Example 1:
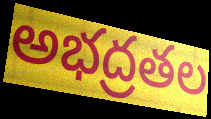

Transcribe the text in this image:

అభద్రతల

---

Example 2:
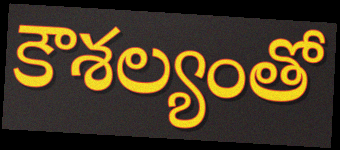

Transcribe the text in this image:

కౌశల్యంతో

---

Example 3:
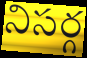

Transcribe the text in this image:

నిసర్గ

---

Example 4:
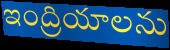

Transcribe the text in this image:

ఇంద్రియాలను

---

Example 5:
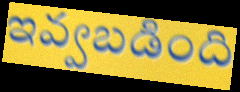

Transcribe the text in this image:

ఇవ్వబడింది